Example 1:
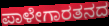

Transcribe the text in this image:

ಪಾಳೇಗಾರತನದ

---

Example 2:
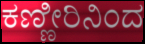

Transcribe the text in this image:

ಕಣ್ಣೀರಿನಿಂದ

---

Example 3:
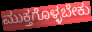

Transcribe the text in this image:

ಮುಕ್ತಗೊಳ್ಳಬೇಕು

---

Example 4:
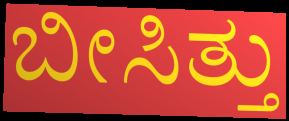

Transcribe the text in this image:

ಬೀಸಿತ್ತು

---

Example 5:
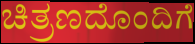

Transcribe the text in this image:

ಚಿತ್ರಣದೊಂದಿಗೆ